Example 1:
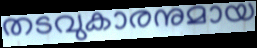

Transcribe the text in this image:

തടവുകാരനുമായ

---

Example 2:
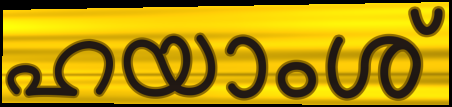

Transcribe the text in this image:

ഹയാംശ്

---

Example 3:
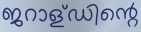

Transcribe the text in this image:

ജറാള്ഡിന്റെ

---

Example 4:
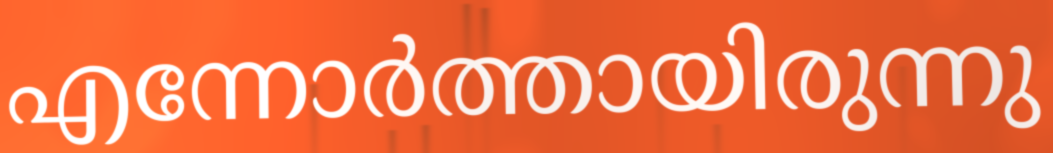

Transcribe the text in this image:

എന്നോർത്തായിരുന്നു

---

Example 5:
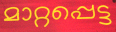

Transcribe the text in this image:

മാറ്റപ്പെട്ട